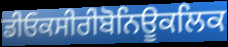
ਡੀਓਕਸੀਰੀਬੋਨਿਊਕਲਿਕ